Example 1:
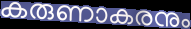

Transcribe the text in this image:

കരുണാകരനും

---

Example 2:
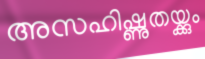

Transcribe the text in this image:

അസഹിഷ്ണുതയ്ക്കും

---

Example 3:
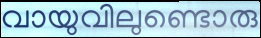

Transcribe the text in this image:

വായുവിലുണ്ടൊരു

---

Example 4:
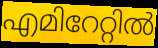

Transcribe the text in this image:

എമിറേറ്റിൽ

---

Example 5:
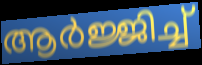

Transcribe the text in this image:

ആർജ്ജിച്ച്